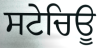
ਸਟੇਚਿਊ